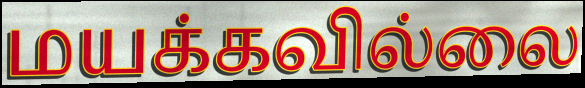
மயக்கவில்லை